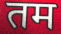
तम